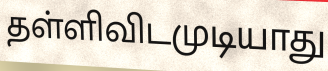
தள்ளிவிடமுடியாது